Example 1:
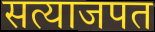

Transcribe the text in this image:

सत्याजपत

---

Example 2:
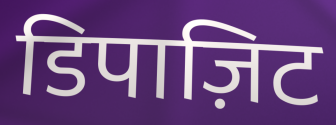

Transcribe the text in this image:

डिपाज़िट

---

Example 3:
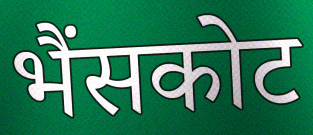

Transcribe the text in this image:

भैंसकोट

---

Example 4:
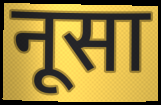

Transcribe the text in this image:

नूसा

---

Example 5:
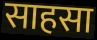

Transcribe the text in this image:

साहसा